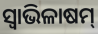
ସ୍ବାଭିଳାଷମ୍